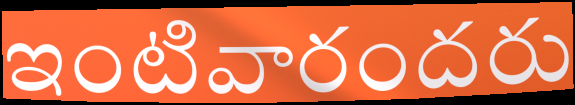
ఇంటివారందరు